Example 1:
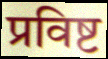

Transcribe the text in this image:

प्रविष्ट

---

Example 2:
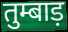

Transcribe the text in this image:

तुम्बाड़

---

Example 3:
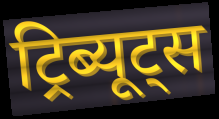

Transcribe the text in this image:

ट्रिब्यूट्स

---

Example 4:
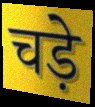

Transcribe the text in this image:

चड़े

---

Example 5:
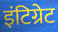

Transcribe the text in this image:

इंटिग्रेट